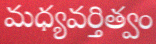
మధ్యవర్తిత్వం